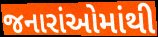
જનારાંઓમાંથી